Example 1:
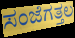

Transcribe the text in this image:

ಸಂಜೆಗತ್ತಲ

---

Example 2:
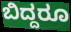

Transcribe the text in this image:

ಬಿದ್ದರೂ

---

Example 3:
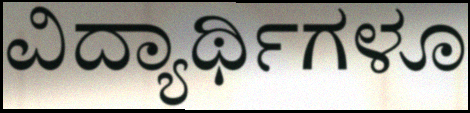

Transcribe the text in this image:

ವಿದ್ಯಾರ್ಥಿಗಳೂ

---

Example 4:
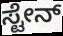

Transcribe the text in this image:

ಸ್ಟೇನ್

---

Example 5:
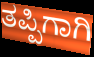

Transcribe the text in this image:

ತಪ್ಪಿಗಾಗಿ